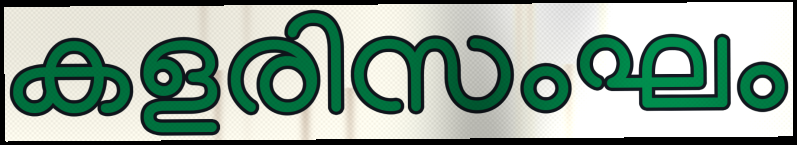
കളരിസംഘം